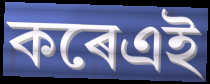
কৰেএই